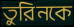
তুরিনকে